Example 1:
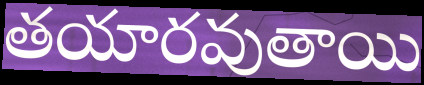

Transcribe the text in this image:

తయారవుతాయి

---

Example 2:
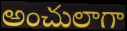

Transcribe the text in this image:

అంచులాగా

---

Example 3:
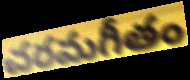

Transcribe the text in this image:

చరమగీతం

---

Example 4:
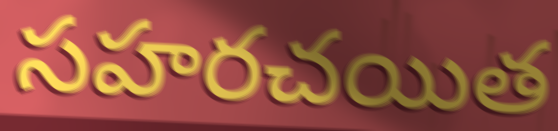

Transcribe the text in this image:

సహరచయిత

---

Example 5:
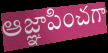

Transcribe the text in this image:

ఆజ్ఞాపించగా